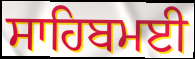
ਸਾਹਿਬਮਈ